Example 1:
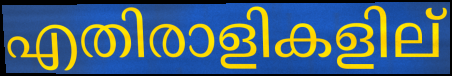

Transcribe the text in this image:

എതിരാളികളില്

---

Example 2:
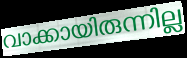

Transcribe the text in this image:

വാക്കായിരുന്നില്ല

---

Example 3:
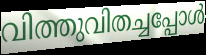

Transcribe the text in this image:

വിത്തുവിതച്ചപ്പോൾ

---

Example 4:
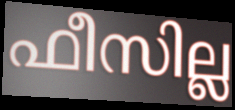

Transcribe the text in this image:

ഫീസില്ല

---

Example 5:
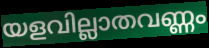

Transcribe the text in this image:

യളവില്ലാതവണ്ണം